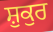
ਸ਼ੁਕੁਰ